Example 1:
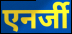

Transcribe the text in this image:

एनर्जी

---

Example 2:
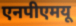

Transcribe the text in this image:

एनपीएमयू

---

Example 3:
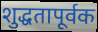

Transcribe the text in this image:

शुद्धतापूर्वक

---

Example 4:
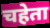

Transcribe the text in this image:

चहेता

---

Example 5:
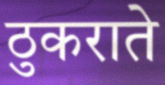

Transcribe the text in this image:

ठुकराते